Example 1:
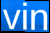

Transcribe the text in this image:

vin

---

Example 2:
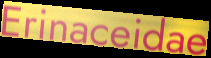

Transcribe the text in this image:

Erinaceidae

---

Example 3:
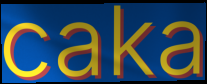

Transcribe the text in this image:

caka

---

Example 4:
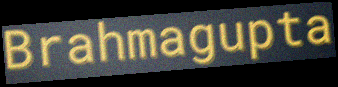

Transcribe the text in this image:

Brahmagupta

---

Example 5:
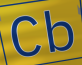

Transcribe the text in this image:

Cb